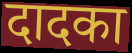
दादका